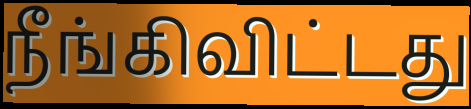
நீங்கிவிட்டது